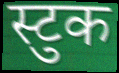
स्टुक